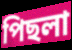
পিছলা